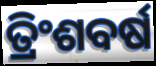
ତ୍ରିଂଶବର୍ଷ